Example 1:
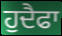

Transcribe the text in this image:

ਹੁਦੈਫਾ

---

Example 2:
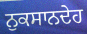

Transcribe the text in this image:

ਨੁਕਸਾਨਦੇਹ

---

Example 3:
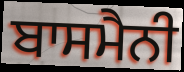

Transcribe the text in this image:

ਬਾਸਮੈਨੀ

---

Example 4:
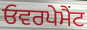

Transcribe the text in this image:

ਓਵਰਪੇਮੈਂਟ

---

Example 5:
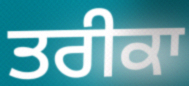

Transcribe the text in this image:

ਤਰੀਕਾ